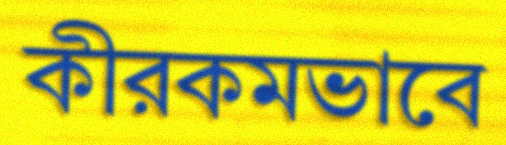
কীরকমভাবে